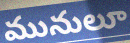
మునులూ